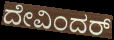
ದೇವಿಂದರ್